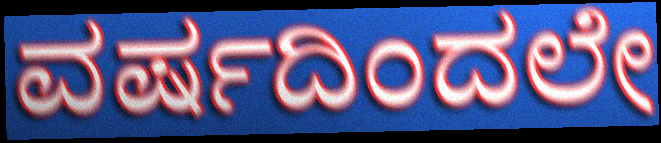
ವರ್ಷದಿಂದಲೇ